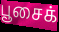
பூசைக்